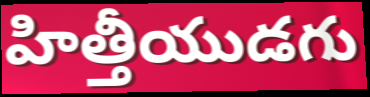
హిత్తీయుడగు